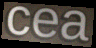
cea